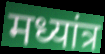
मध्यांत्र